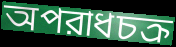
অপরাধচক্র